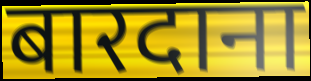
बारदाना